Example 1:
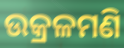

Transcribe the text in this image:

ଉକ୍ରଳମଣି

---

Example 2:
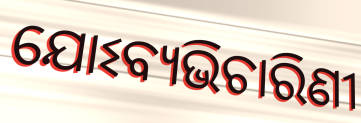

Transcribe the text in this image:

ଯୋଽବ୍ୟଭିଚାରିଣୀ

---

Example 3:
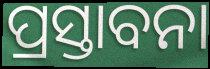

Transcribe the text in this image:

ପ୍ରସ୍ତାବନା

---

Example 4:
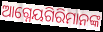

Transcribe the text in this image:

ଆଗ୍ନେୟଗିରିମାନଙ୍କ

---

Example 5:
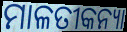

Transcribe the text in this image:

ମାଳତୀକନ୍ୟା